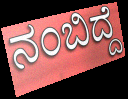
ನಂಬಿದ್ದೆ